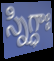
స్నిగ్ధాః